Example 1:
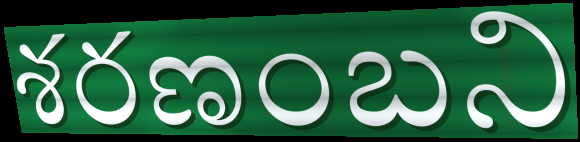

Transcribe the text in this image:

శరణంబని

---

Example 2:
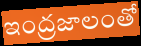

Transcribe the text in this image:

ఇంద్రజాలంతో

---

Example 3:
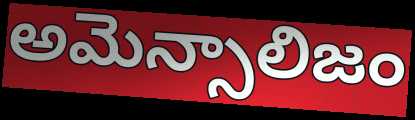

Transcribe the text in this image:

అమెన్సాలిజం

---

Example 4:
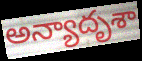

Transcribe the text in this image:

అన్యాదృశా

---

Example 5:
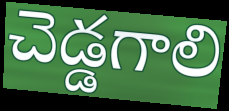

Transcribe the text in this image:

చెడ్డగాలి